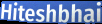
Hiteshbhai